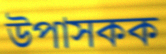
উপাসকক